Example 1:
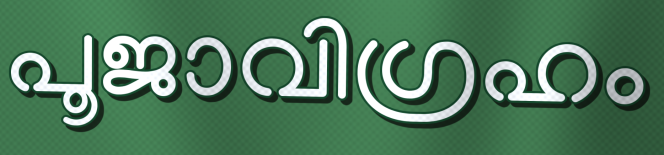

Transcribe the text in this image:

പൂജാവിഗ്രഹം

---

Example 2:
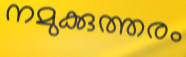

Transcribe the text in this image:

നമുക്കുത്തരം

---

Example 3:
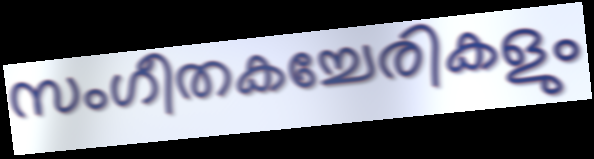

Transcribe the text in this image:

സംഗീതകച്ചേരികളും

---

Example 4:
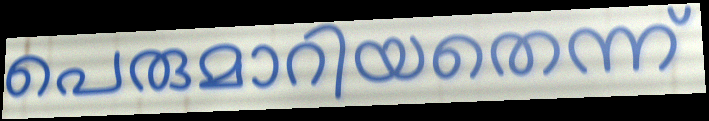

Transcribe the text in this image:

പെരുമാറിയതെന്ന്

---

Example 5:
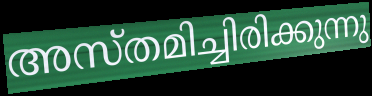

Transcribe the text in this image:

അസ്തമിച്ചിരിക്കുന്നു